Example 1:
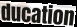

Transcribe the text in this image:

ducation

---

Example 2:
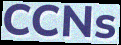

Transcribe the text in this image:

CCNs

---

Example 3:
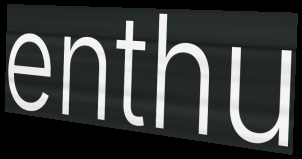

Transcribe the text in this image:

enthu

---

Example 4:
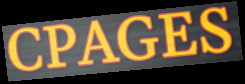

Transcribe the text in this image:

CPAGES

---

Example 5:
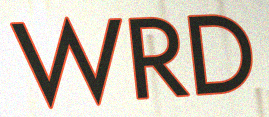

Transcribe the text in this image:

WRD